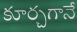
కూర్చగానే